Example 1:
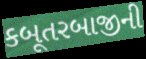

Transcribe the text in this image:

કબૂતરબાજીની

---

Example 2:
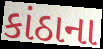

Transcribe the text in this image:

કાંઠાના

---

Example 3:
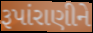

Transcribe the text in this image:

રૂપાંરાણીને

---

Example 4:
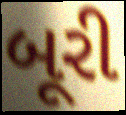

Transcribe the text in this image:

બૂરી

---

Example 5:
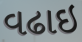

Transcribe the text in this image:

વઢાઇ